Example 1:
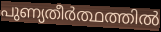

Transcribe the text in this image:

പുണ്യതീർത്ഥത്തിൽ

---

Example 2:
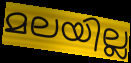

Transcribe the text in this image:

മലയില്ല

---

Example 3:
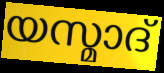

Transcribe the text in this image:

യസ്മാദ്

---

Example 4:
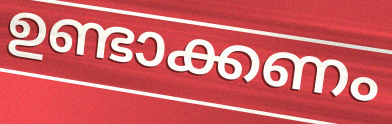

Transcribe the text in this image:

ഉണ്ടാക്കണം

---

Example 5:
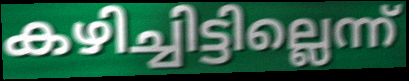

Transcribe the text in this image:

കഴിച്ചിട്ടില്ലെന്ന്